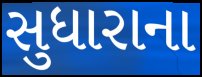
સુધારાના